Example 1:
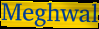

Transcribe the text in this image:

Meghwal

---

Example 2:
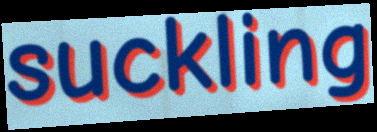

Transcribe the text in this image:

suckling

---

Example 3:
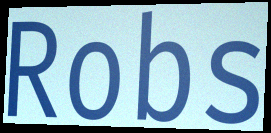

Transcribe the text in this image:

Robs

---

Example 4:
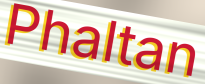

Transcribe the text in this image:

Phaltan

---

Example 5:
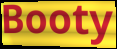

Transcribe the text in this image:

Booty